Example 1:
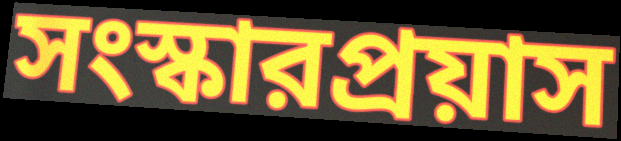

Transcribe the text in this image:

সংস্কারপ্রয়াস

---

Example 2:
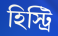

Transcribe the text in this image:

হিস্ট্রি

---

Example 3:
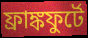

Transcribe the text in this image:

ফ্রাঙ্কফুর্টে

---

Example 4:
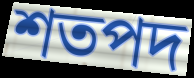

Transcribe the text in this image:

শতপদ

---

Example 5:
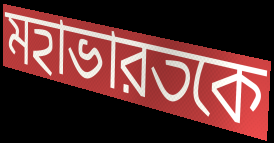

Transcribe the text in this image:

মহাভারতকে